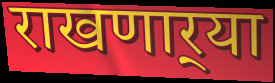
राखणार्या